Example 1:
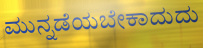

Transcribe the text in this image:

ಮುನ್ನಡೆಯಬೇಕಾದುದು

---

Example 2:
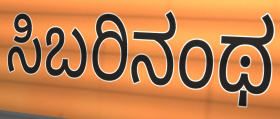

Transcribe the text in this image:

ಸಿಬರಿನಂಥ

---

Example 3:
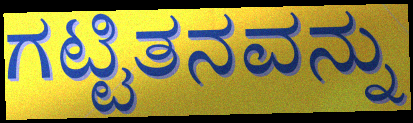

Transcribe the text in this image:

ಗಟ್ಟಿತನವನ್ನು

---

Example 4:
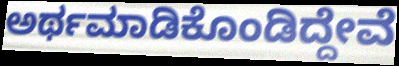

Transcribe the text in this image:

ಅರ್ಥಮಾಡಿಕೊಂಡಿದ್ದೇವೆ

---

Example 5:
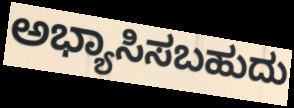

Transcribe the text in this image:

ಅಭ್ಯಾಸಿಸಬಹುದು